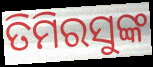
ତିମିରସୁଙ୍କ